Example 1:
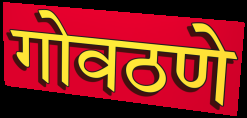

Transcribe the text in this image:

गोवठणे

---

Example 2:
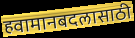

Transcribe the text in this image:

हवामानबदलासाठी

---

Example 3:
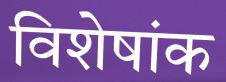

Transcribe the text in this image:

विशेषांक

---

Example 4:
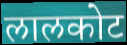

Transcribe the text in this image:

लालकोट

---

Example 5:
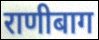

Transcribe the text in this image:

राणीबाग